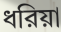
ধরিয়া